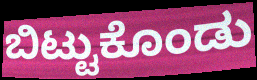
ಬಿಟ್ಟುಕೊಂಡು